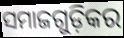
ସମାଜଗୁଡ଼ିକର